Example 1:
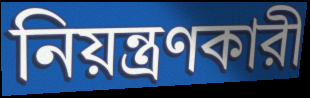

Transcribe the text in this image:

নিয়ন্ত্রণকারী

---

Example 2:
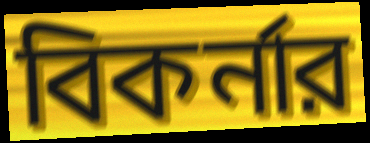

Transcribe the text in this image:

বিকর্নার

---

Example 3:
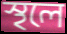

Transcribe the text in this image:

স্থলে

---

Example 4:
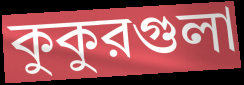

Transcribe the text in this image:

কুকুরগুলা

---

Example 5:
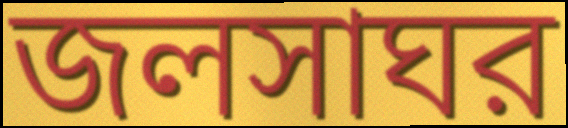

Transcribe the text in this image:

জলসাঘর